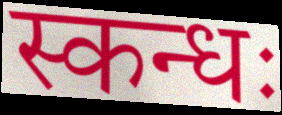
स्कन्धः